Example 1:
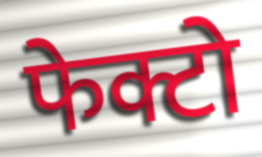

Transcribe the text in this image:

फेक्टो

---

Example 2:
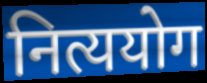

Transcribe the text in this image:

नित्ययोग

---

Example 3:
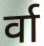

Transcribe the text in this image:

र्वा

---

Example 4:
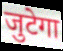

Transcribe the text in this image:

जुटेगा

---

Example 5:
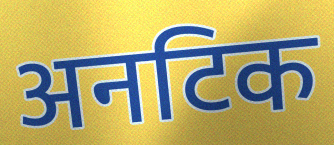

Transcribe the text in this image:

अनटिक